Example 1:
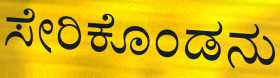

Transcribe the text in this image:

ಸೇರಿಕೊಂಡನು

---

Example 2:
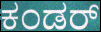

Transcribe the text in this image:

ಕಂಡರ್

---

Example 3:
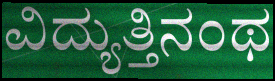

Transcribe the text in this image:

ವಿದ್ಯುತ್ತಿನಂಥ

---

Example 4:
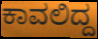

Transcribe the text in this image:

ಕಾವಲಿದ್ದ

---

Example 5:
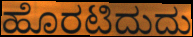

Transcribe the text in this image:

ಹೊರಟಿದುದು